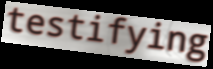
testifying